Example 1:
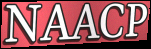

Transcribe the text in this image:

NAACP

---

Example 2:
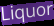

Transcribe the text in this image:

Liquor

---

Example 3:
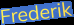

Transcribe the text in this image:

Frederik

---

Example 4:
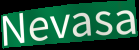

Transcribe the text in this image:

Nevasa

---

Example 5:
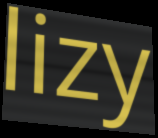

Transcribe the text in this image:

lizy